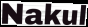
Nakul